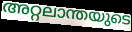
അറ്റലാന്തയുടെ